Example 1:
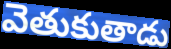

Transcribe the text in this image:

వెతుకుతాడు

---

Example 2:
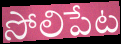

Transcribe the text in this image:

సోలిపేట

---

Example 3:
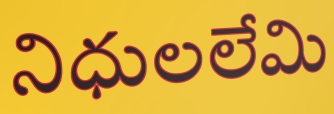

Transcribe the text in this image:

నిధులలేమి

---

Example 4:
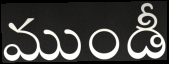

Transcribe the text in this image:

ముండీ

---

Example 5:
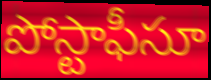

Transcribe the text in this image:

పోస్టాఫీసూ